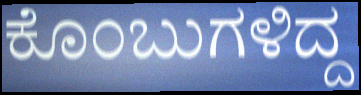
ಕೊಂಬುಗಳಿದ್ದ